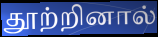
தூற்றினால்